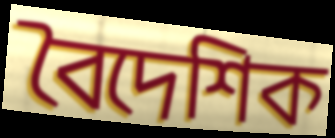
বৈদেশিক